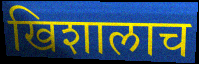
खिशालाच